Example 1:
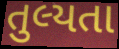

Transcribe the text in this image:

તુલ્યતા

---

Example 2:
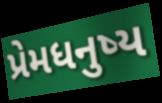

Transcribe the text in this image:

પ્રેમધનુષ્ય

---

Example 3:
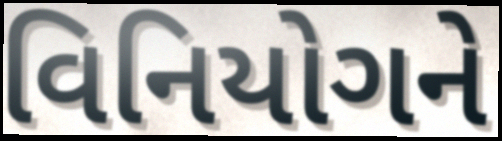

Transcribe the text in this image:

વિનિયોગને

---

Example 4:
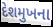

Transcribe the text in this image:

દેશમુખના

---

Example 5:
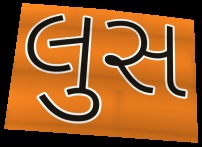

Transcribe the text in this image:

લુસ